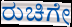
ರುಚಿಗೇ